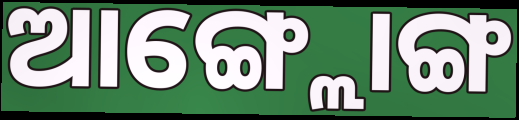
ଆଙ୍ଗ୍ଲୋଙ୍ଗ